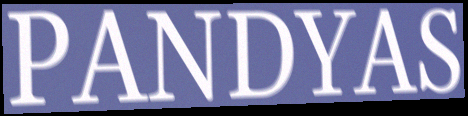
PANDYAS